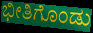
ಭೀತಿಗೊಂಡು